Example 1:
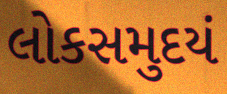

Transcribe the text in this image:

લોકસમુદયં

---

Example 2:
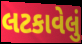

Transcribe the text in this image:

લટકાવેલું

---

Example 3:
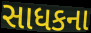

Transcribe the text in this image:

સાધકના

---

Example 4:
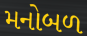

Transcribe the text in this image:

મનોબળ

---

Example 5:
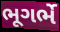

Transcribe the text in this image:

ભૂગર્ભે